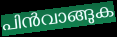
പിൻവാങ്ങുക